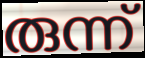
രുന്ന്